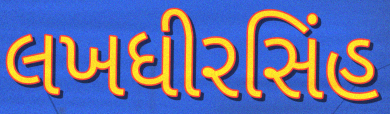
લખધીરસિંહ